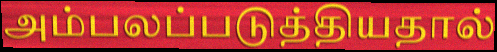
அம்பலப்படுத்தியதால்